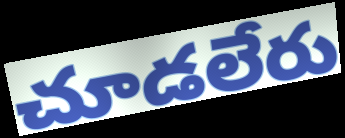
చూడలేరు